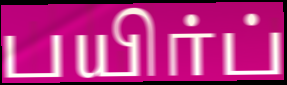
பயிர்ப்